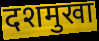
दशमुखा